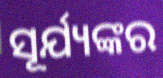
ସୂର୍ଯ୍ୟଙ୍କର